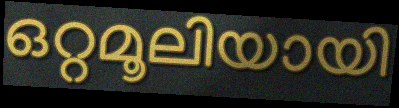
ഒറ്റമൂലിയായി